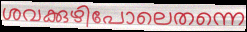
ശവക്കുഴിപോലെതന്നെ